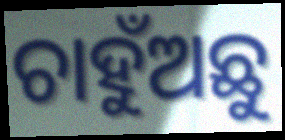
ଚାହୁଁଅଛୁ